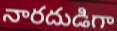
నారదుడిగా